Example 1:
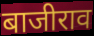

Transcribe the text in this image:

बाजीराव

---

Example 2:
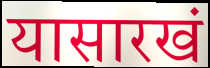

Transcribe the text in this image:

यासारखं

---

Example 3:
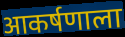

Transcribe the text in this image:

आकर्षणाला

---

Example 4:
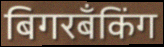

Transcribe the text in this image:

बिगरबँकिंग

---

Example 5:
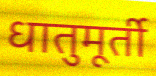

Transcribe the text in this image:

धातुमूर्ती